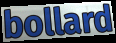
bollard